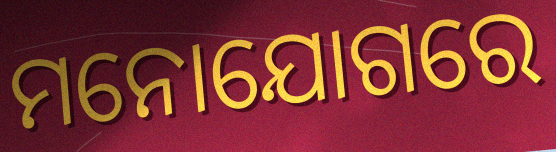
ମନୋଯୋଗରେ